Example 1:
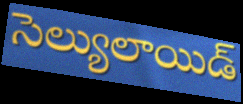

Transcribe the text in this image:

సెల్యులాయిడ్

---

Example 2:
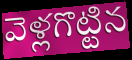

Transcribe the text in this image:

వెళ్లగొట్టిన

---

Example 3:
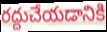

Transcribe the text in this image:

రద్దుచేయడానికి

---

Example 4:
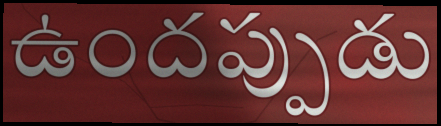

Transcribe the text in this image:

ఉందప్పుడు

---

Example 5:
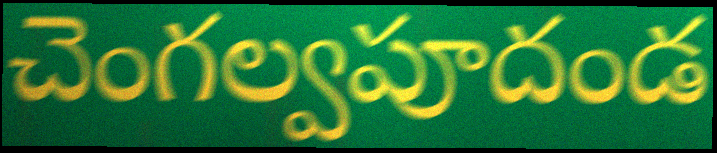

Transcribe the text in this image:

చెంగల్వపూదండ